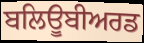
ਬਲਿਊਬੀਅਰਡ